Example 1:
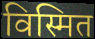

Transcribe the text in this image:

विस्मित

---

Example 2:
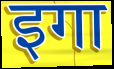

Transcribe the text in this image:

इगा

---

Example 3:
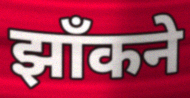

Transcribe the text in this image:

झाँकने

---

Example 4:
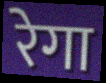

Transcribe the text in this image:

रेगा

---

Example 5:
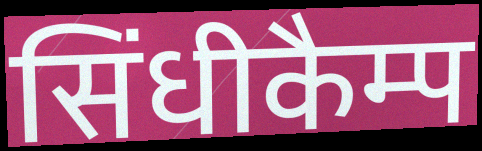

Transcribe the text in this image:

सिंधीकैम्प